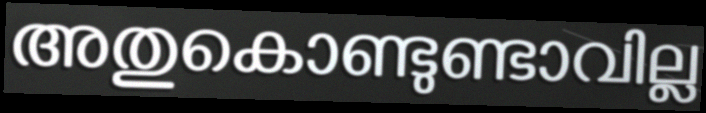
അതുകൊണ്ടുണ്ടാവില്ല